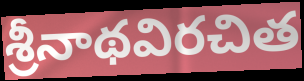
శ్రీనాథవిరచిత